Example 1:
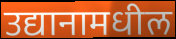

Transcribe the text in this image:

उद्यानामधील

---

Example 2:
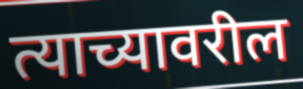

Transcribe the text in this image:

त्याच्यावरील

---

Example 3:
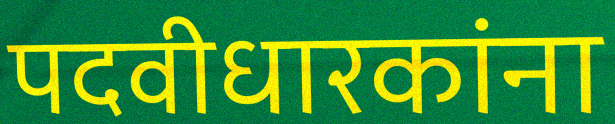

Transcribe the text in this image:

पदवीधारकांना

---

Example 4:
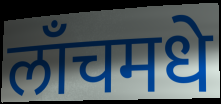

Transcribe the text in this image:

लाँचमधे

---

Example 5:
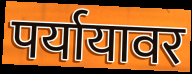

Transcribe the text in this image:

पर्यायावर